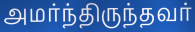
அமர்ந்திருந்தவர்